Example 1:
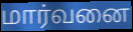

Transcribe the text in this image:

மார்வனை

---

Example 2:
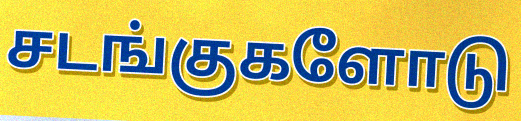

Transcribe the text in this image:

சடங்குகளோடு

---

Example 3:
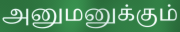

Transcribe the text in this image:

அனுமனுக்கும்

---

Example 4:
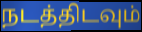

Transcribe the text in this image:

நடத்திடவும்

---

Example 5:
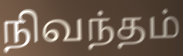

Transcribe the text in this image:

நிவந்தம்